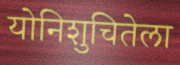
योनिशुचितेला